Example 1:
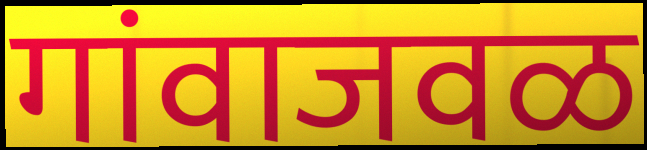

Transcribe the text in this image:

गांवाजवळ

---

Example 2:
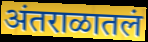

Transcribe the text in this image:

अंतराळातलं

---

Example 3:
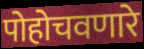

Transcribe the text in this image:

पोहोचवणारे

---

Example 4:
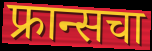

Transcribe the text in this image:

फ्रान्सचा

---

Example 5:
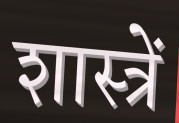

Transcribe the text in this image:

शास्त्रें